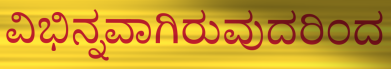
ವಿಭಿನ್ನವಾಗಿರುವುದರಿಂದ